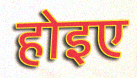
होइए